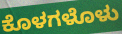
ಕೊಳಗಳೊಳು